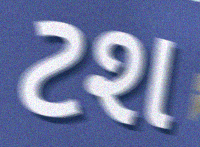
ટશ